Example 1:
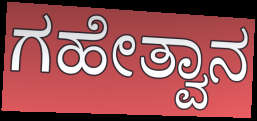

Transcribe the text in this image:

ಗಹೇತ್ವಾನ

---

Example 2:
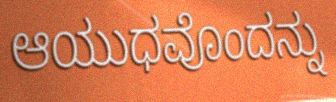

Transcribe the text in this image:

ಆಯುಧವೊಂದನ್ನು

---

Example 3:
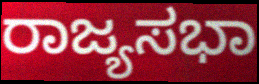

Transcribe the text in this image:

ರಾಜ್ಯಸಭಾ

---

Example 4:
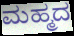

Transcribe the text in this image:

ಮಹ್ಮದ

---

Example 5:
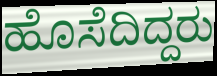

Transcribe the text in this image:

ಹೊಸೆದಿದ್ದರು